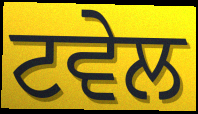
ਟਵੇਲ